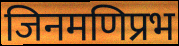
जिनमणिप्रभ